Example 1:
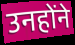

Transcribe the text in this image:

उनहोंने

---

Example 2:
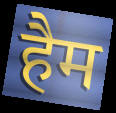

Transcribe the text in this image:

हैम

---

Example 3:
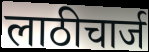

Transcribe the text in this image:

लाठीचार्ज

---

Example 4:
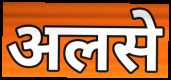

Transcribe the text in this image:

अलसे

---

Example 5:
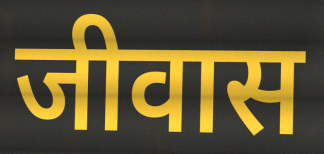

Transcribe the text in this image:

जीवास